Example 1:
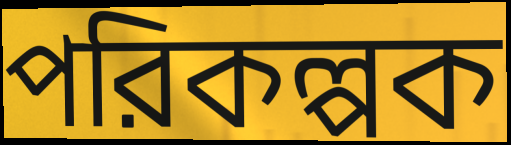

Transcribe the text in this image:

পরিকল্পক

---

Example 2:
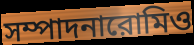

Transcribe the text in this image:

সম্পাদনারোমিও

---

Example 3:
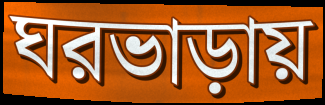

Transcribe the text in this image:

ঘরভাড়ায়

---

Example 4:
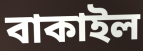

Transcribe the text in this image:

বাকাইল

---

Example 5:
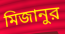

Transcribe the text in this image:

মিজানুর